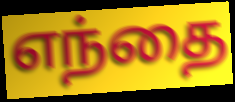
எந்தை